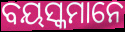
ବୟସ୍କମାନେ